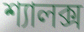
শ্যালক্স